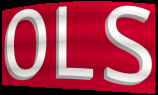
OLS